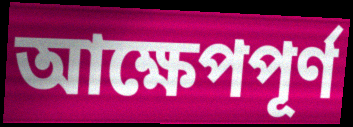
আক্ষেপপূর্ণ